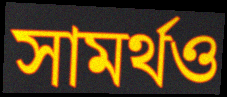
সামর্থও